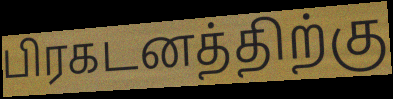
பிரகடனத்திற்கு